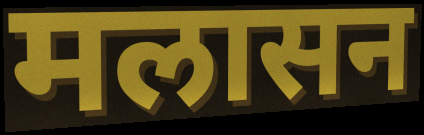
मलासन